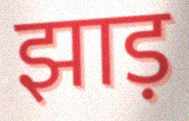
झाड़